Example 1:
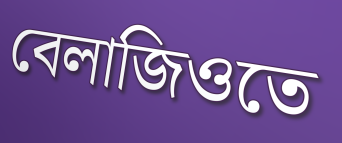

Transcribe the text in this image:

বেলাজিওতে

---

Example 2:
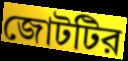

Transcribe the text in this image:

জোটটির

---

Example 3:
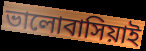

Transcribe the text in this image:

ভালোবাসিয়াই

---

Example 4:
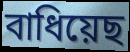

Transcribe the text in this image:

বাধিয়েছ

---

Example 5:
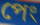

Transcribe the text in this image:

পেং